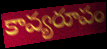
కావ్యరూపం